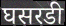
घसरडी